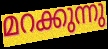
മറക്കുന്നു